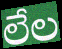
లేల